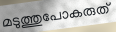
മടുത്തുപോകരുത്